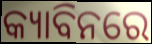
କ୍ୟାବିନରେ